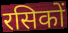
रसिकों